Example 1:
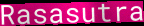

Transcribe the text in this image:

Rasasutra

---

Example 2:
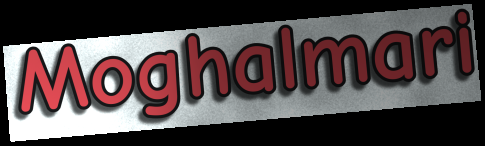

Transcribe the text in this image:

Moghalmari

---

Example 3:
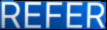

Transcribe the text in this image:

REFER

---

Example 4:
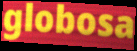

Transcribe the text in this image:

globosa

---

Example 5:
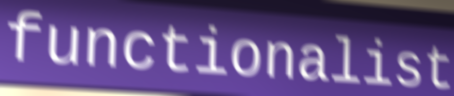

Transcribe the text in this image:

functionalist